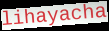
lihayacha